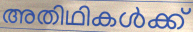
അതിഥികൾക്ക്